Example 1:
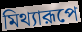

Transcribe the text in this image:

মিথ্যারূপে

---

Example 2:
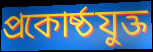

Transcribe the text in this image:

প্রকোষ্ঠযুক্ত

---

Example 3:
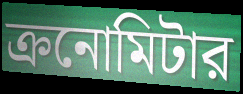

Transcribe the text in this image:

ক্রনোমিটার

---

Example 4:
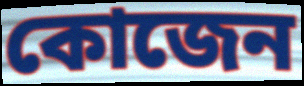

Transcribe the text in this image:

কোজেন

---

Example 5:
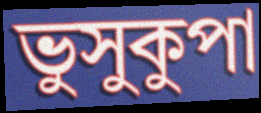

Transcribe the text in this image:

ভুসুকুপা